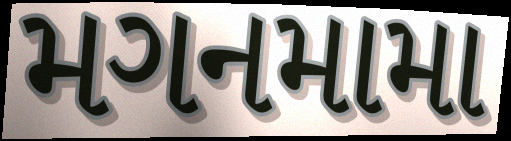
મગનમામા